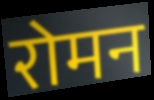
रोमन